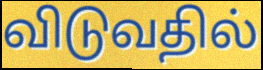
விடுவதில்